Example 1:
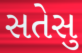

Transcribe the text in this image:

સતેસુ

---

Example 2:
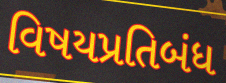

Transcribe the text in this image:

વિષયપ્રતિબંધ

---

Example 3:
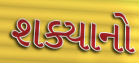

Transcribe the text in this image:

શક્યાનો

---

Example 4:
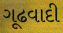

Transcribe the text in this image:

ગૂઢવાદી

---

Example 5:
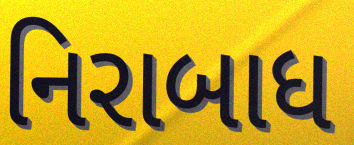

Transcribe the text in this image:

નિરાબાધ